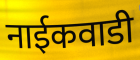
नाईकवाडी